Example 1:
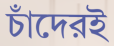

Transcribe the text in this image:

চাঁদেরই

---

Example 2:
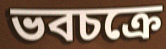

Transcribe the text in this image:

ভবচক্রে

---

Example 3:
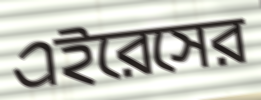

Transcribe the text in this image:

এইরেসের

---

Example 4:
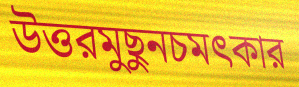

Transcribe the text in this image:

উত্তরমুছুনচমৎকার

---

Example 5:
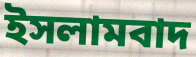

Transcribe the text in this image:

ইসলামবাদ